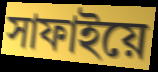
সাফাইয়ে